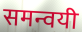
समन्वयी